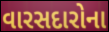
વારસદારોના